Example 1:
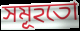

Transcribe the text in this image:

সমূহতো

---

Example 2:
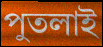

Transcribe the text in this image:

পুতলাই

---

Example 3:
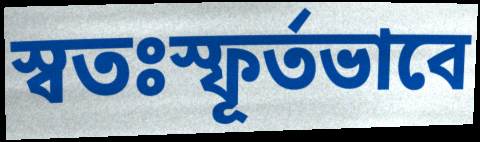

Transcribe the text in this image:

স্বতঃস্ফূৰ্তভাবে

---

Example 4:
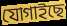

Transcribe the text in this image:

যোগাইছে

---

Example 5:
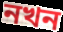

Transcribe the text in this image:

নখন